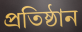
প্রতিষ্ঠান